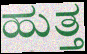
ಹುತ್ತ